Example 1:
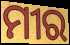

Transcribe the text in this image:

ମୀର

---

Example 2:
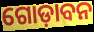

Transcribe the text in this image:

ଗୋଡ଼ାବନ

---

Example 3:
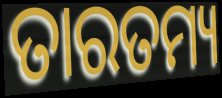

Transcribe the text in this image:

ତାରତମ୍ୟ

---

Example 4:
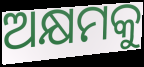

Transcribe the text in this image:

ଅକ୍ଷମକୁ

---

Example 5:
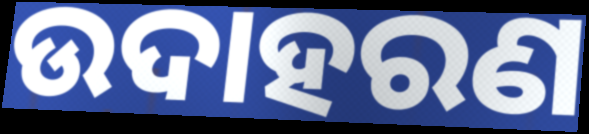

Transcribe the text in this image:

ଉଦାହରଣ